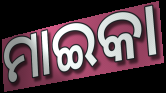
ମାଇକା